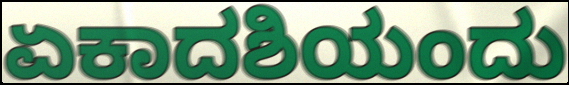
ಏಕಾದಶಿಯಂದು